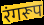
रंगरूप